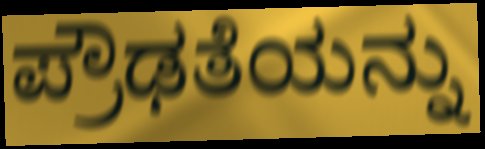
ಪ್ರೌಢತೆಯನ್ನು